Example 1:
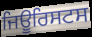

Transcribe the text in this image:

ਜਿਊਰਿਸਟਸ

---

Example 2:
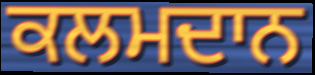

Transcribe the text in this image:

ਕਲਮਦਾਨ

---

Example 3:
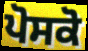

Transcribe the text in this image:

ਪੋਸਕੋ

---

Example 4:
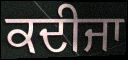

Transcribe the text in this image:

ਕਦੀਜਾ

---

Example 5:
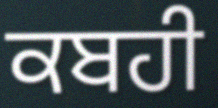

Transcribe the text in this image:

ਕਬਹੀ